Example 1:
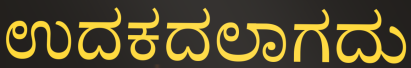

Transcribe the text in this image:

ಉದಕದಲಾಗದು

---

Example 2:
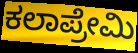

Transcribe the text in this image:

ಕಲಾಪ್ರೇಮಿ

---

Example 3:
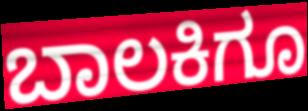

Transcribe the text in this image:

ಬಾಲಕಿಗೂ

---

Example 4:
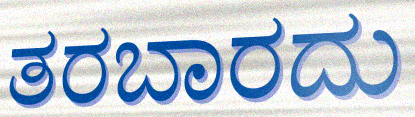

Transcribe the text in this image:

ತರಬಾರದು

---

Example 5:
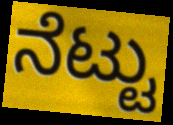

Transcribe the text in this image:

ನೆಟ್ಟು